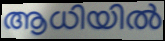
ആധിയിൽ